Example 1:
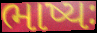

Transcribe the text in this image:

ભાષ્યઃ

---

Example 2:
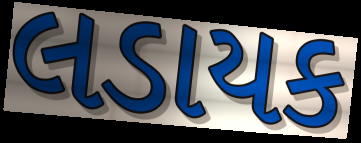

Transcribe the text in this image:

લડાયક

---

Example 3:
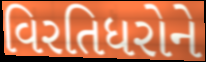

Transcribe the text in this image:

વિરતિધરોને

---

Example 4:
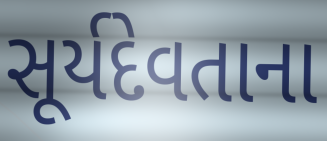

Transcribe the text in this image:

સૂર્યદેવતાના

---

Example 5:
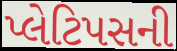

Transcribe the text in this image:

પ્લેટિપસની